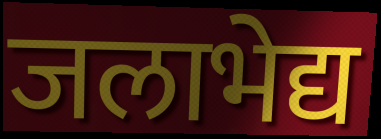
जलाभेद्य